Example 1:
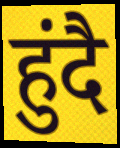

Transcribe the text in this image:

हुंदै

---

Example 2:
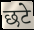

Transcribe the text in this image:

छटे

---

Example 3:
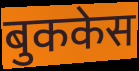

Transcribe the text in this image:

बुककेस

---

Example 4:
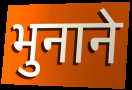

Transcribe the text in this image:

भुनाने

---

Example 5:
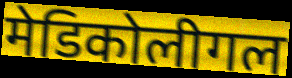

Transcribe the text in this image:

मेडिकोलीगल